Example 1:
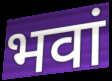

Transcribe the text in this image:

भवां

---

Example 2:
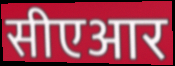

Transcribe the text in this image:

सीएआर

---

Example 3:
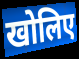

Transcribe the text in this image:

खोलिए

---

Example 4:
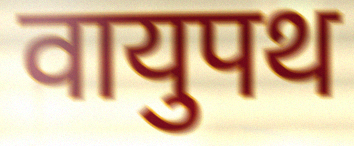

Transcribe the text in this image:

वायुपथ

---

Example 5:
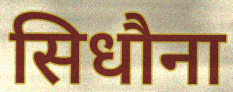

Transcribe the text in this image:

सिधौना